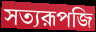
সত্যরূপজি